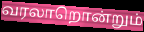
வரலாறொன்றும்